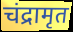
चंद्रामृत